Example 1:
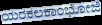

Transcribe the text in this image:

ಯರಕಲಕಾಂಭೋಜಿ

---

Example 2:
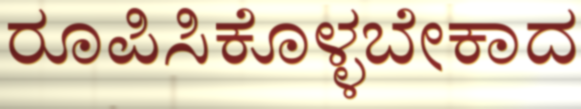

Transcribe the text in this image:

ರೂಪಿಸಿಕೊಳ್ಳಬೇಕಾದ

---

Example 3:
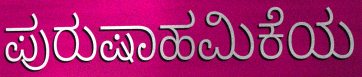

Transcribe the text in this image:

ಪುರುಷಾಹಮಿಕೆಯ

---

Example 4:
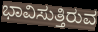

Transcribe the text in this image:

ಭಾವಿಸುತ್ತಿರುವ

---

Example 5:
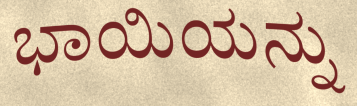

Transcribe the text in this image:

ಭಾಯಿಯನ್ನು